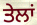
ਤੇਲਾਂ